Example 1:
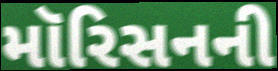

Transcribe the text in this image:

મૉરિસનની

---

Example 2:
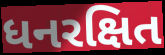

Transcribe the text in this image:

ધનરક્ષિત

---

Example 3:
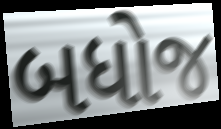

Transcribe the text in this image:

બધોજ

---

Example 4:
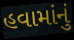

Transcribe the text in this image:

હવામાંનું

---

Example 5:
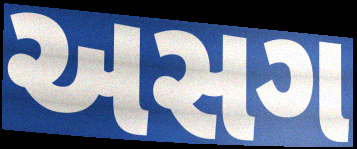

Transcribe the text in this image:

અસગ